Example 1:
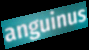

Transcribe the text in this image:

anguinus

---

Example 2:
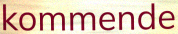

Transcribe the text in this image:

kommende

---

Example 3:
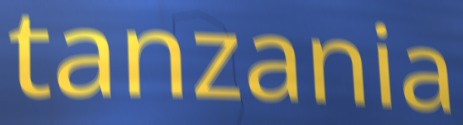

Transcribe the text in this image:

tanzania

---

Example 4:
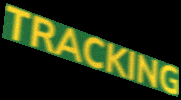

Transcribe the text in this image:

TRACKING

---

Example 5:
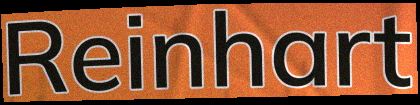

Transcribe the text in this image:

Reinhart